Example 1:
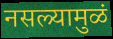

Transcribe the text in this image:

नसल्यामुळं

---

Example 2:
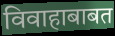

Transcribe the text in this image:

विवाहाबाबत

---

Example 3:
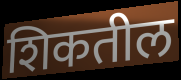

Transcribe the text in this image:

शिकतील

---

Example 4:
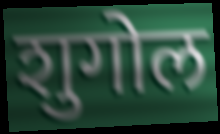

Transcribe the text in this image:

शुगोल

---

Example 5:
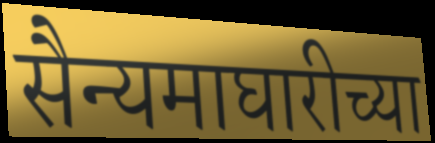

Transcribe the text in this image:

सैन्यमाघारीच्या